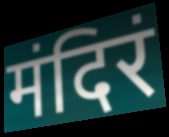
मंदिरं